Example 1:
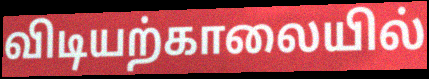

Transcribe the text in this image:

விடியற்காலையில்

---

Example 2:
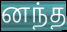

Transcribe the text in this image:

னந்த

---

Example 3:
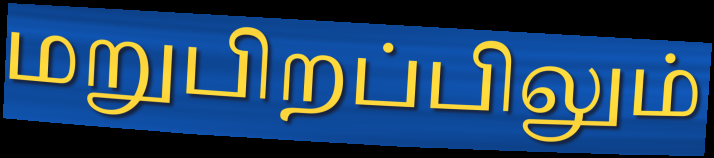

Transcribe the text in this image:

மறுபிறப்பிலும்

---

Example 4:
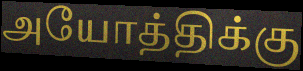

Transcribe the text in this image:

அயோத்திக்கு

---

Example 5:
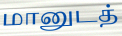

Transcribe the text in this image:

மானுடத்